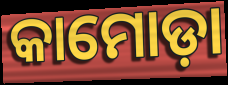
କାମୋଡ଼ା